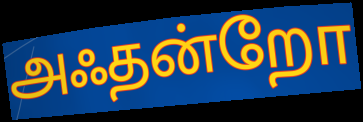
அஃதன்றோ